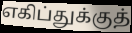
எகிப்துக்குத்